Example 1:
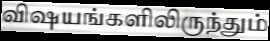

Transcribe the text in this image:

விஷயங்களிலிருந்தும்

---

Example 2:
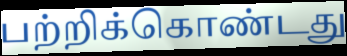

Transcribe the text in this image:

பற்றிக்கொண்டது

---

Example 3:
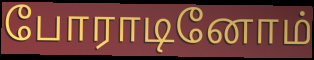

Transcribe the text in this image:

போராடினோம்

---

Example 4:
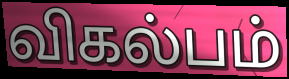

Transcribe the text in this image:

விகல்பம்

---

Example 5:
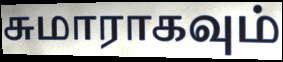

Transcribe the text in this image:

சுமாராகவும்